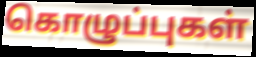
கொழுப்புகள்